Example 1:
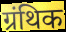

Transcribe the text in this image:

ग्रंथिक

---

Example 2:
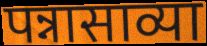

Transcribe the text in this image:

पन्नासाव्या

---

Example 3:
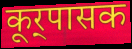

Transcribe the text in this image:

कूर्पासक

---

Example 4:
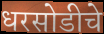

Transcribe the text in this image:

धरसोडीचे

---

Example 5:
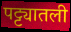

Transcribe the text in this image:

पट्ट्यातली